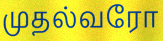
முதல்வரோ